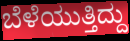
ಬೆಳೆಯುತ್ತಿದ್ದು